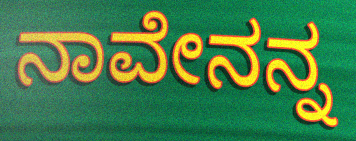
ನಾವೇನನ್ನ